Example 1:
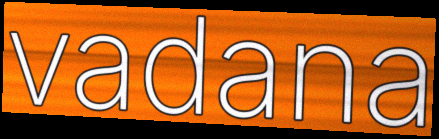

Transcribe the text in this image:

vadana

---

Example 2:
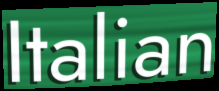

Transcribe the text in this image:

Italian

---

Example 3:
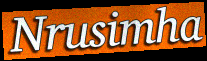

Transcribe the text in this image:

Nrusimha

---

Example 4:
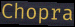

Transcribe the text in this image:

Chopra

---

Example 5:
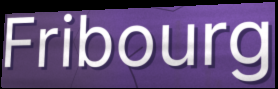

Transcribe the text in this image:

Fribourg